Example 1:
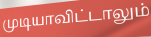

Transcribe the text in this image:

முடியாவிட்டாலும்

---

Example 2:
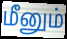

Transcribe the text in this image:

மீனும்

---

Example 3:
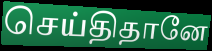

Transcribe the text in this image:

செய்திதானே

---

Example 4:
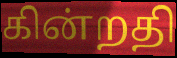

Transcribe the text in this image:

கின்றதி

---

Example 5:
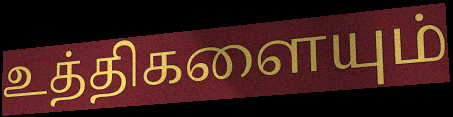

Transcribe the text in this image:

உத்திகளையும்